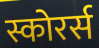
स्कोरर्स